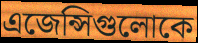
এজেন্সিগুলোকে